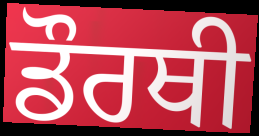
ਡੌਰਥੀ